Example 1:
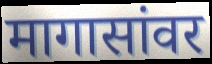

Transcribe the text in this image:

मागासांवर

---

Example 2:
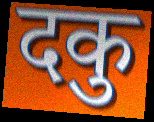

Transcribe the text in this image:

दकु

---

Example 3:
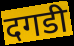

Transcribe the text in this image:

दगडी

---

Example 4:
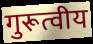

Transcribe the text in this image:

गुरूत्वीय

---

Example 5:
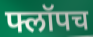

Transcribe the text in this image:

फ्लॉपच